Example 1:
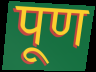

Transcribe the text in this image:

पूण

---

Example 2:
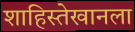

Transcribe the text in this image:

शाहिस्तेखानला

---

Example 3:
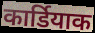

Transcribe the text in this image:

कार्डियाक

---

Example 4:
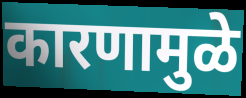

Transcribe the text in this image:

कारणामुळे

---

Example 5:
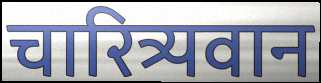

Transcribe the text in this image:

चारित्र्यवान